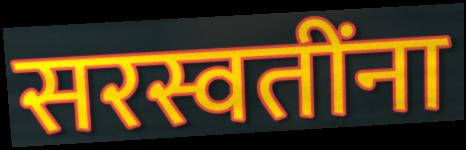
सरस्वतींना